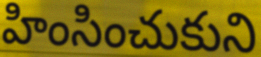
హింసించుకుని